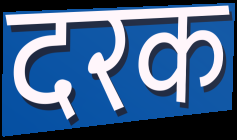
दरक